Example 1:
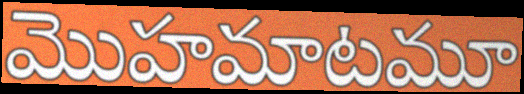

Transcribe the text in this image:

మొహమాటమూ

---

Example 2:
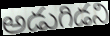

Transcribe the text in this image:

అడుగిడని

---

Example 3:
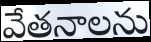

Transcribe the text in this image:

వేతనాలను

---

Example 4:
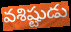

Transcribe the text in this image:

వశిష్టుడు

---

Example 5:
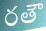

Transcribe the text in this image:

రతౌ